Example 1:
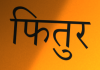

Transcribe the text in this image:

फितुर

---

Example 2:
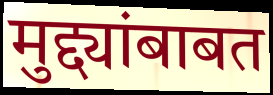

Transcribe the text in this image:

मुद्द्यांबाबत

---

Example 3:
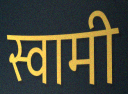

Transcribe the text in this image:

स्वामी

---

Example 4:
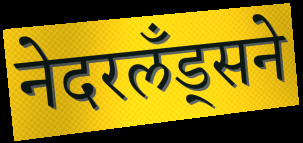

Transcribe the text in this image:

नेदरलँड्सने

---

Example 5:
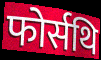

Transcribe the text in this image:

फोर्सथि